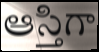
ఆస్తిగా